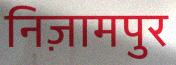
निज़ामपुर